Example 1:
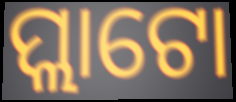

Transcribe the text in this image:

ପ୍ଲାଟୋ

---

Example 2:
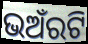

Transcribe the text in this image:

ଭଅଁରଟି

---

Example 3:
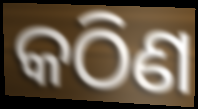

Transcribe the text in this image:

କଠିଣ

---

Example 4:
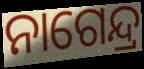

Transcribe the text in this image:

ନାଗେନ୍ଦ୍ର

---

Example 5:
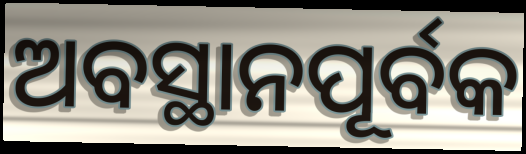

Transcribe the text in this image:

ଅବସ୍ଥାନପୂର୍ବକ